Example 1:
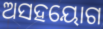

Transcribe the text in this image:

ଅସହୟୋଗ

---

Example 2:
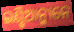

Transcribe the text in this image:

ଇଣ୍ଡିଆନ୍ମାନେ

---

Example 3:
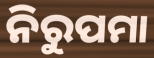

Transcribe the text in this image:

ନିରୁପମା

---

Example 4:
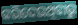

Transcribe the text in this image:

କରିଦେଉଥିବାରୁ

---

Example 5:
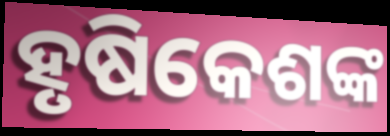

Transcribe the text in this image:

ହୃଷିକେଶଙ୍କ